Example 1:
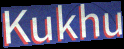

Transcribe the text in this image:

Kukhu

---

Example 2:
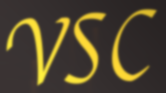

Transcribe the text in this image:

VSC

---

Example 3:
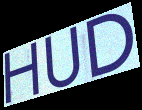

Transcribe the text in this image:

HUD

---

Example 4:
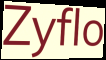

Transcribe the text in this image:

Zyflo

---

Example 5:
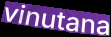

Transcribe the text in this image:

vinutana